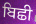
ਬਿਛੀ